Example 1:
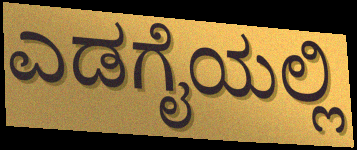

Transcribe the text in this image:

ಎಡಗೈಯಲ್ಲಿ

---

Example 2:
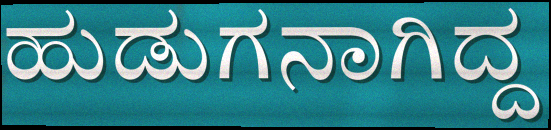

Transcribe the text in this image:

ಹುಡುಗನಾಗಿದ್ದ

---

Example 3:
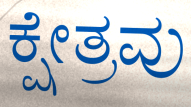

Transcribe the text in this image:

ಕ್ಷೇತ್ರವು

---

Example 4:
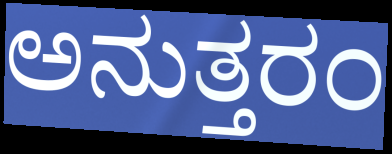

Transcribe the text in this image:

ಅನುತ್ತರಂ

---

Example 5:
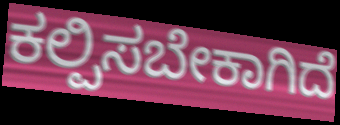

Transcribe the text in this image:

ಕಲ್ಪಿಸಬೇಕಾಗಿದೆ